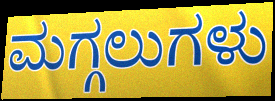
ಮಗ್ಗಲುಗಳು